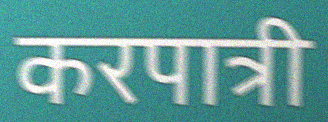
करपात्री